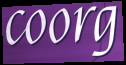
coorg